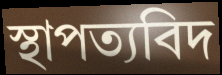
স্থাপত্যবিদ